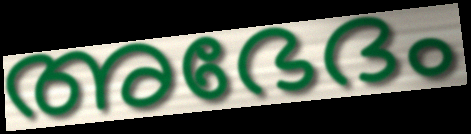
അഭേദം